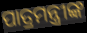
ପାତ୍ରମନ୍ତ୍ରୀଙ୍କ